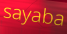
sayaba